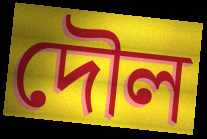
দৌল